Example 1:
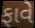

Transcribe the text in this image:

ફાવે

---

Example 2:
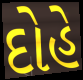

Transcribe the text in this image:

દોહે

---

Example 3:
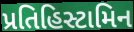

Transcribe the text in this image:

પ્રતિહિસ્ટામિન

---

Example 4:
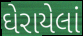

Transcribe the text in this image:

ઘેરાયેલાં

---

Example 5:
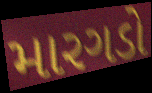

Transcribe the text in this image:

મારગડો